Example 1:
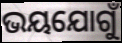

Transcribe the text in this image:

ଭୟଯୋଗୁଁ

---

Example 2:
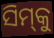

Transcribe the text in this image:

ସିମ୍‌କୁ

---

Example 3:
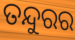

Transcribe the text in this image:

ତନ୍ଦୁରର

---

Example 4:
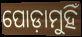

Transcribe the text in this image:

ପୋଡ଼ାମୁହିଁ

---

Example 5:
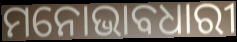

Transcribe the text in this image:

ମନୋଭାବଧାରୀ